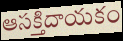
ఆసక్తిదాయకం